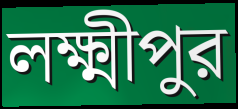
লক্ষ্মীপুর